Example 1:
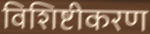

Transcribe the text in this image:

विशिष्टीकरण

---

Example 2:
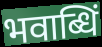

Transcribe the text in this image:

भवाब्धिं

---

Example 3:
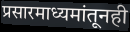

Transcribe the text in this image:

प्रसारमाध्यमांतूनही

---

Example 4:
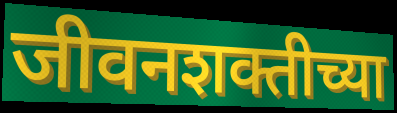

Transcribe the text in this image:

जीवनशक्तीच्या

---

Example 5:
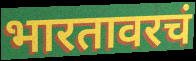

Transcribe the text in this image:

भारतावरचं